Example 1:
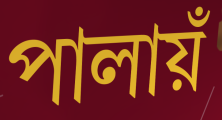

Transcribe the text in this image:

পালায়ঁ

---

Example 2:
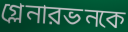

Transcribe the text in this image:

গ্লেনারভনকে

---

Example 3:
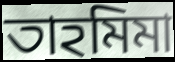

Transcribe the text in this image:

তাহমিমা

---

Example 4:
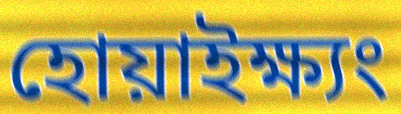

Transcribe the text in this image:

হোয়াইক্ষ্যং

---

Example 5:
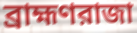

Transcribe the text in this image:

ব্রাহ্মণরাজা